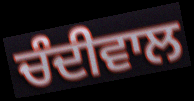
ਚੰਦੀਵਾਲ